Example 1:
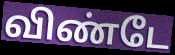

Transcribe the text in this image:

விண்டே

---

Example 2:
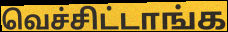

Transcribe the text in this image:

வெச்சிட்டாங்க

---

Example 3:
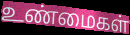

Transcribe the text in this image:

உண்மைகள்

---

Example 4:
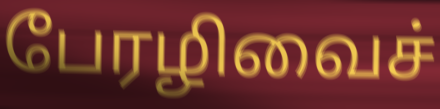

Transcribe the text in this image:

பேரழிவைச்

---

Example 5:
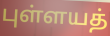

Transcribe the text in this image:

புள்ளயத்